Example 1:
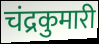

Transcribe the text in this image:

चंद्रकुमारी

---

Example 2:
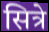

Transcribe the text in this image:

सित्रे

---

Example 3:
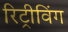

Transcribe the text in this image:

रिट्रीविंग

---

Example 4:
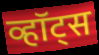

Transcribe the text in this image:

व्हॉट्स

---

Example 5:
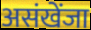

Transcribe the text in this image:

असंखेंजा